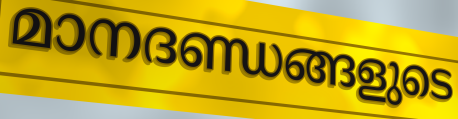
മാനദണ്ഡങ്ങളുടെ